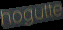
hogutte